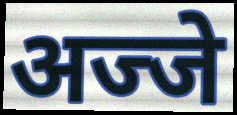
अज्जे